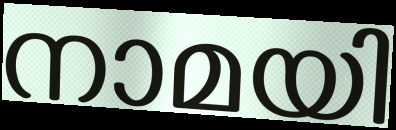
നാമയി